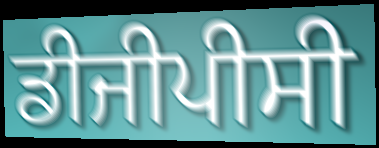
ਡੀਜੀਪੀਸੀ